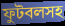
ফুটবলসহ